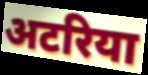
अटरिया